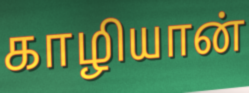
காழியான்